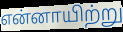
என்னாயிற்று